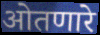
ओतणारे